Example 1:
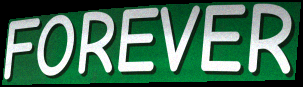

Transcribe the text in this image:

FOREVER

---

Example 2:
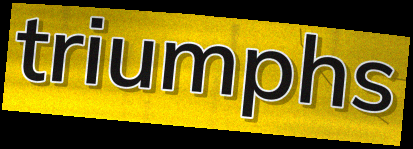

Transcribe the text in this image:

triumphs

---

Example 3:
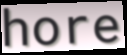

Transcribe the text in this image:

hore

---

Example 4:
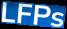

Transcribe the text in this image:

LFPs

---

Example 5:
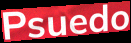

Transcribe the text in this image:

Psuedo